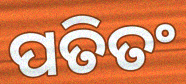
ପତିତଂ